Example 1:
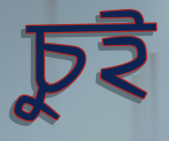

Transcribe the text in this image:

চুই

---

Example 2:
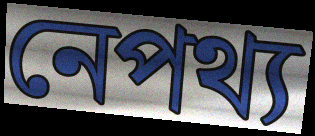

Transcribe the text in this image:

নেপথ্য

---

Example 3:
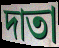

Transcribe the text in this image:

দাতা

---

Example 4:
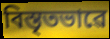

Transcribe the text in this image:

বিস্তৃতভাৱে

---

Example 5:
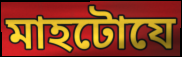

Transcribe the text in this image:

মাহটোযে